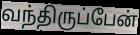
வந்திருப்பேன்